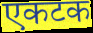
एकटक